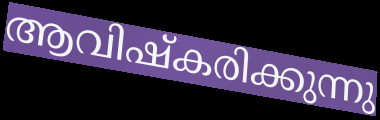
ആവിഷ്കരിക്കുന്നു